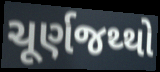
ચૂર્ણજથ્થો